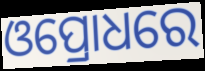
ଓପ୍ରୋଧରେ